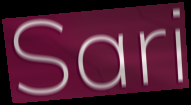
Sari